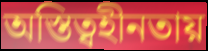
অস্তিত্বহীনতায়